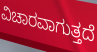
ವಿಚಾರವಾಗುತ್ತದೆ